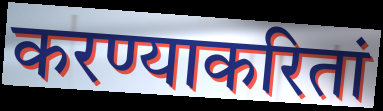
करण्याकरितां